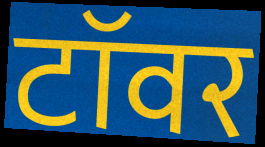
टॉवर